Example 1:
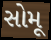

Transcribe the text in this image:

સોમૂ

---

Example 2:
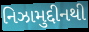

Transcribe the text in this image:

નિઝામુદ્દીનથી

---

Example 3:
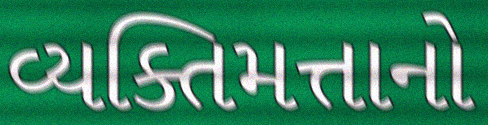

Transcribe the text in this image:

વ્યક્તિમત્તાનો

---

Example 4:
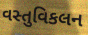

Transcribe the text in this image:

વસ્તુવિકલન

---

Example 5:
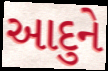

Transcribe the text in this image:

આદુને